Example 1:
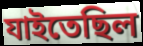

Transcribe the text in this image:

যাইতেছিল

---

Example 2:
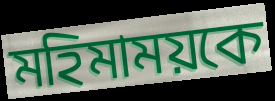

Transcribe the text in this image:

মহিমাময়কে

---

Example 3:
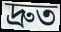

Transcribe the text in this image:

দ্রুত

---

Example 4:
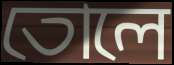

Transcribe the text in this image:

তোলে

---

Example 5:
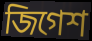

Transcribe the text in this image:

জিগেশ